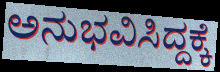
ಅನುಭವಿಸಿದ್ದಕ್ಕೆ